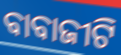
ବାବାଜୀଟି